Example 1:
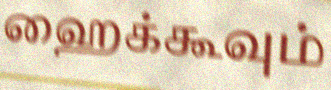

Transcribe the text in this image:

ஹைக்கூவும்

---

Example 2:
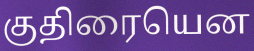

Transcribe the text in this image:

குதிரையென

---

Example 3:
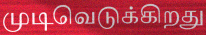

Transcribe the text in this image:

முடிவெடுக்கிறது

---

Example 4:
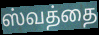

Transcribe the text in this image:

ஸ்வத்தை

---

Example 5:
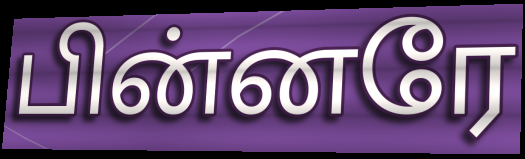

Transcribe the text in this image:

பின்னரே